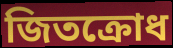
জিতক্রোধ